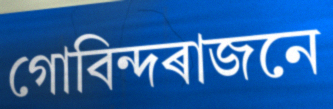
গোবিন্দৰাজনে